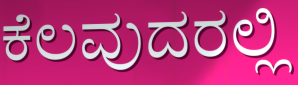
ಕೆಲವುದರಲ್ಲಿ